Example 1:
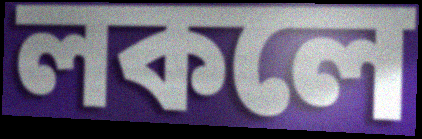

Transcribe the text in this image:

লকলে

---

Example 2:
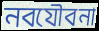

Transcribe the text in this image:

নবযৌবনা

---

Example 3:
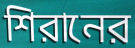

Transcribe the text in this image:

শিরানের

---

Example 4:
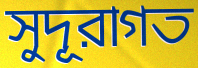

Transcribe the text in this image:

সুদূরাগত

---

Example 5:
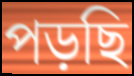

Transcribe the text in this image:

পড়ছি